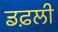
ਡਫ਼ਲੀ